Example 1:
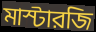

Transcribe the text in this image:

মাস্টারজি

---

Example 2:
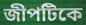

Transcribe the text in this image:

জীপটিকে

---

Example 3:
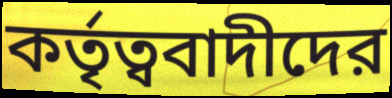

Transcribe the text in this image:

কর্তৃত্ববাদীদের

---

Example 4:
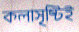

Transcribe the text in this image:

কলাসৃষ্টিই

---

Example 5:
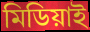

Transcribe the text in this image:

মিডিয়াই